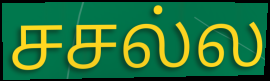
சசல்ல